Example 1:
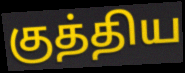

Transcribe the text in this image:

குத்திய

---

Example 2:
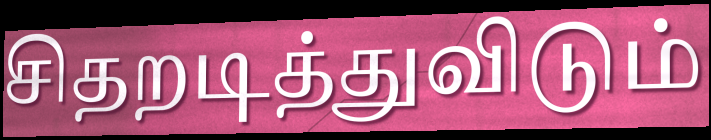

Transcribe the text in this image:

சிதறடித்துவிடும்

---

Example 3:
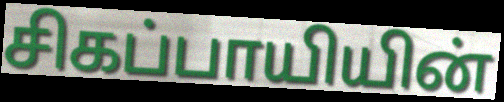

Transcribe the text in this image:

சிகப்பாயியின்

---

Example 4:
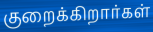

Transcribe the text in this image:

குறைக்கிறார்கள்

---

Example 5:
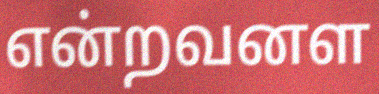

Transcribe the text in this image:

என்றவனள